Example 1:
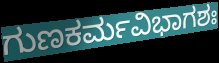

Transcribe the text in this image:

ಗುಣಕರ್ಮವಿಭಾಗಶಃ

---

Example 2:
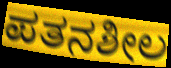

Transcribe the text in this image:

ಪತನಶೀಲ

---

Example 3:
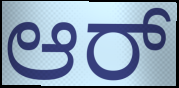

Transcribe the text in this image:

ಆರ್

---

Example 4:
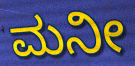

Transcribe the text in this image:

ಮನೀ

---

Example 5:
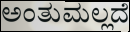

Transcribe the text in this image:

ಅಂತುಮಲ್ಲದೆ